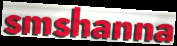
smshanna